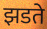
झडते